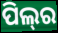
ପିଲ୍‌ର